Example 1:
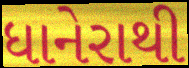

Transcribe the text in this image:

ધાનેરાથી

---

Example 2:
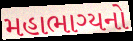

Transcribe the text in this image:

મહાભાગ્યનો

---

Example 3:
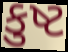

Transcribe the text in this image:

કુષ્ટ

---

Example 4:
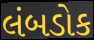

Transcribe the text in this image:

લંબડોક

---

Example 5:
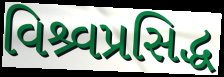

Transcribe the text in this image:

વિશ્ર્વપ્રસિદ્ધ